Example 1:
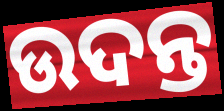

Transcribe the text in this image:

ଉଦନ୍ତ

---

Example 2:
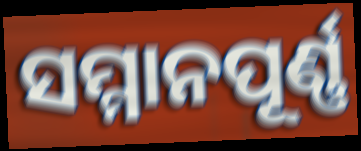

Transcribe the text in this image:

ସମ୍ମାନପୂର୍ଣ୍ଣ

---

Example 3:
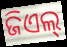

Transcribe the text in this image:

ଜିଏଲ୍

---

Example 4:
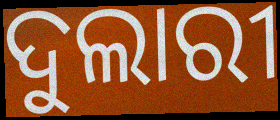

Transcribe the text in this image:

ଦୁଲାରୀ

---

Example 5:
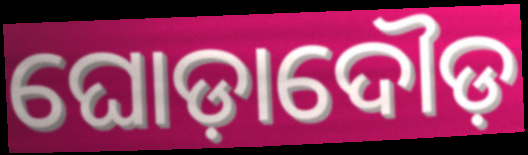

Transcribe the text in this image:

ଘୋଡ଼ାଦୌଡ଼